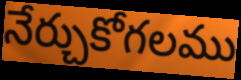
నేర్చుకోగలము